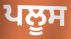
ਪਲੂਸ